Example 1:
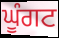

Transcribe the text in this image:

ਘੂੰਗਟ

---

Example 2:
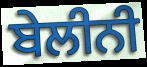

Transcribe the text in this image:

ਬੇਲੀਨੀ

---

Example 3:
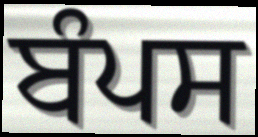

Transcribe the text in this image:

ਬੰਪਸ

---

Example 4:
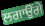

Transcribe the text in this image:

ਲਗਾਉਂਗੇ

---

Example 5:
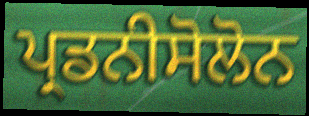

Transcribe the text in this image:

ਪ੍ਰਡਨੀਸੋਲੋਨ